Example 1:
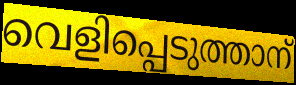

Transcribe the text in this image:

വെളിപ്പെടുത്താന്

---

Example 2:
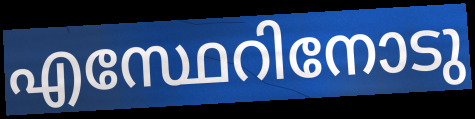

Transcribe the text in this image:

എസ്ഥേറിനോടു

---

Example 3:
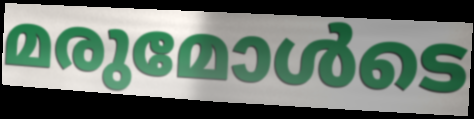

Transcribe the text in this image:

മരുമോൾടെ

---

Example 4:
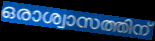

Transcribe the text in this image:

ഒരാശ്വാസത്തിന്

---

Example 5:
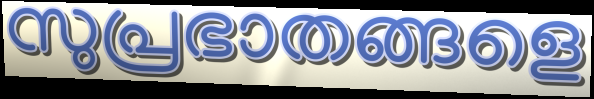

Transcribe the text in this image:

സുപ്രഭാതങ്ങളെ